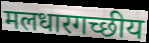
मलधारगच्छीय